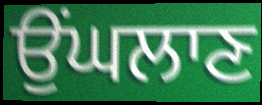
ਉਂਘਲਾਣ